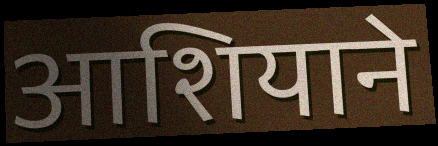
आशियाने